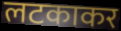
लटकाकर